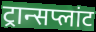
ट्रान्सप्लांट